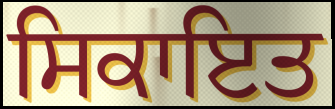
ਸਿਕਾਇਤ